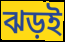
ঝড়ই